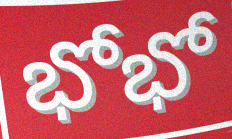
భోభో